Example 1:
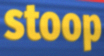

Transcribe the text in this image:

stoop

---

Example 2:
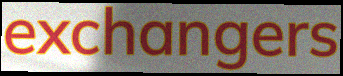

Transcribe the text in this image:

exchangers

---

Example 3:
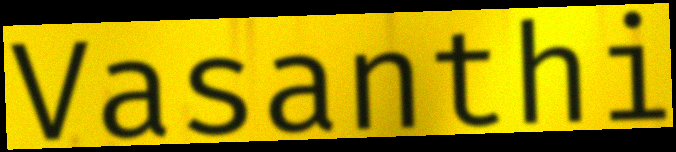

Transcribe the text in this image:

Vasanthi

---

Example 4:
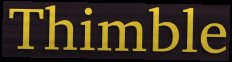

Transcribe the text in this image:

Thimble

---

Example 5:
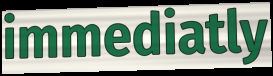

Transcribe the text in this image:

immediatly